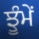
ਝੂੰਮੇਂ